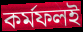
কর্মফলই